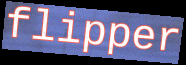
flipper